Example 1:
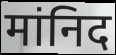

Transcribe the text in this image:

मांनिद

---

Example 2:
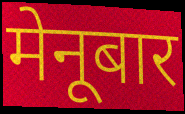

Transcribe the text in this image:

मेनूबार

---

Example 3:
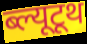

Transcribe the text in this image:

ब्ल्यूटूथ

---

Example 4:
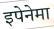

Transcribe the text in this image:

इपेनेमा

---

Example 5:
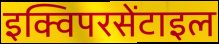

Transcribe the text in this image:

इक्विपरसेंटाइल